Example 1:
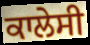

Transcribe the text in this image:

ਕਾਲੇਸੀ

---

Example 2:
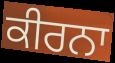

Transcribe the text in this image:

ਕੀਰਨਾ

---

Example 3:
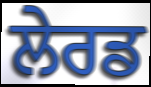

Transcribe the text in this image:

ਲੇਰਡ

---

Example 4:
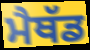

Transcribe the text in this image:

ਮੈਥੱਡ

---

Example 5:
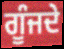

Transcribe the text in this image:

ਗੂੰਜਦੇ